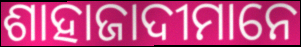
ଶାହାଜାଦୀମାନେ